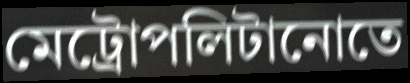
মেট্রোপলিটানোতে